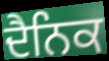
ਦੈਨਿਕ